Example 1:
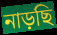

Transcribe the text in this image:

নাড়ছি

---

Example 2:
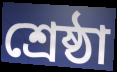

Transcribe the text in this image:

শ্রেষ্ঠা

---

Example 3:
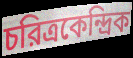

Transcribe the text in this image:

চরিত্রকেন্দ্রিক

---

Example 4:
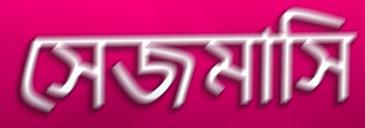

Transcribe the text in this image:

সেজমাসি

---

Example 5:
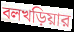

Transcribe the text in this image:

বলখড়িয়ার